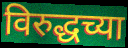
विरुद्धच्या